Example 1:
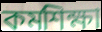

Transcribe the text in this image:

কর্মশিক্ষা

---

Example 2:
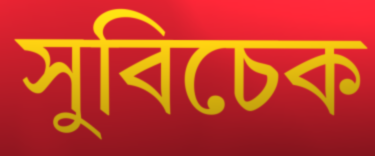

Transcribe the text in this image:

সুবিচেক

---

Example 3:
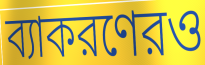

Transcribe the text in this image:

ব্যাকরণেরও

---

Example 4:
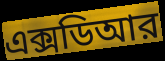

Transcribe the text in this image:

এক্সডিআর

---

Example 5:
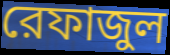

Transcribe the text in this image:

রেফাজুল